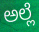
ಅಲ್ಲೆ